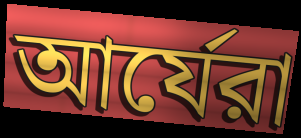
আর্যেরা